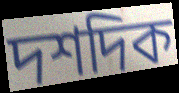
দশদিক